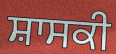
ਸ਼ਾਸਕੀ